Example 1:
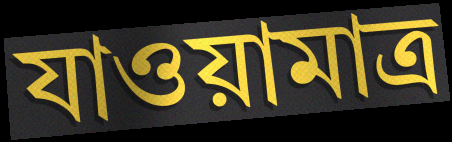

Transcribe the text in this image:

যাওয়ামাত্র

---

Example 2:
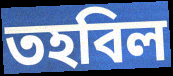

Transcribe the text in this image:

তহবিল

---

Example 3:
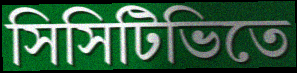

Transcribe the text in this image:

সিসিটিভিতে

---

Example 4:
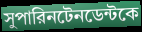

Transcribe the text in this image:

সুপারিনটেনডেন্টকে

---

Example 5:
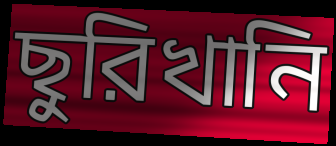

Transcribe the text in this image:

ছুরিখানি